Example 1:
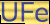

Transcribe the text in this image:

UFe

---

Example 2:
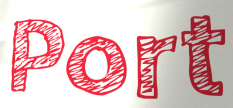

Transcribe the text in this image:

Port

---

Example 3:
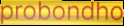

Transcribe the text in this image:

probondho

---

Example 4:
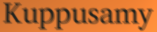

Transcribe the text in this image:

Kuppusamy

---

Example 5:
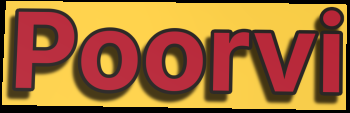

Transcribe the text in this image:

Poorvi